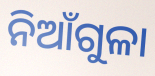
ନିଆଁଗୁଳା